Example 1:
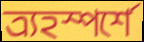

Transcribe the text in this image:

ত্র্যহস্পর্শে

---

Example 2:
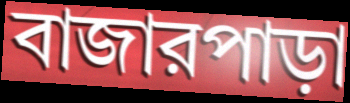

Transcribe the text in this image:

বাজারপাড়া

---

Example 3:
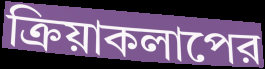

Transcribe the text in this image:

ক্রিয়াকলাপের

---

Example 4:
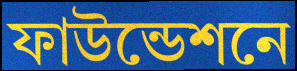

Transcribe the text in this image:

ফাউন্ডেশনে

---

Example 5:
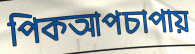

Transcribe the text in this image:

পিকআপচাপায়